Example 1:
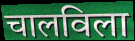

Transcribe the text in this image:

चालविला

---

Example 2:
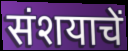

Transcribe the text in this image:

संशयाचें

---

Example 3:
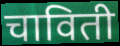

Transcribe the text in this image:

चाविती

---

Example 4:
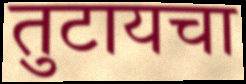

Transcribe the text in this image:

तुटायचा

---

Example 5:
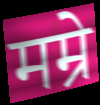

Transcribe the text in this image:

मम्रे